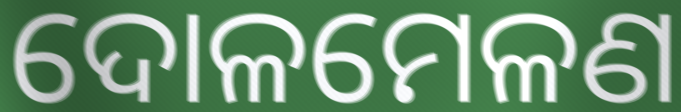
ଦୋଳମେଳଣ